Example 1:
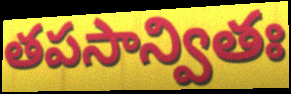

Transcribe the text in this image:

తపసాన్వితః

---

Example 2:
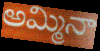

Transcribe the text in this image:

అమ్మినా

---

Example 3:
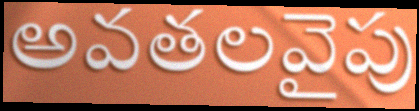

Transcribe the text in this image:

అవతలవైపు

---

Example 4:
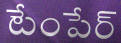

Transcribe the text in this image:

టేంపేర్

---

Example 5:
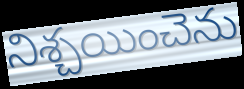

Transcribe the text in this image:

నిశ్చయించెను